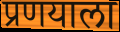
प्रणयाला